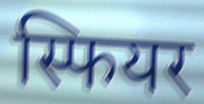
स्फियर